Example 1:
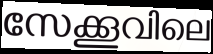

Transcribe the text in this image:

സേക്കൂവിലെ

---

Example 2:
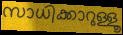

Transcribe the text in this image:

സാധിക്കാറുള്ളൂ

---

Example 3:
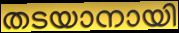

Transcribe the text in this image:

തടയാനായി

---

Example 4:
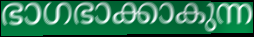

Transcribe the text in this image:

ഭാഗഭാക്കാകുന്ന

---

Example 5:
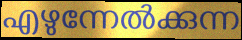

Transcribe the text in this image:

എഴുന്നേൽക്കുന്ന